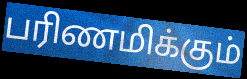
பரிணமிக்கும்